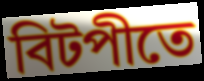
বিটপীতে